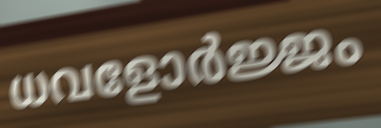
ധവളോർജ്ജം